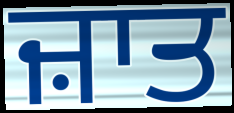
ਜ਼ਾਤ